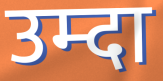
उम्दा